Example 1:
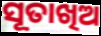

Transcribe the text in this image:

ସୂତାଖିଅ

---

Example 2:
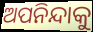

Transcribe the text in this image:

ଅପନିନ୍ଦାକୁ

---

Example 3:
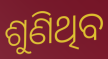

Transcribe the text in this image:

ଶୁଣିଥିବ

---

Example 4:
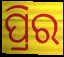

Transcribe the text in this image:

ପ୍ରିର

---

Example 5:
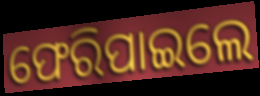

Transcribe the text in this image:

ଫେରିପାଇଲେ